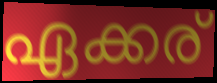
ഏക്കര്